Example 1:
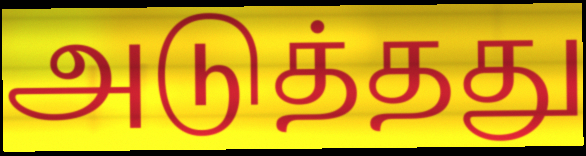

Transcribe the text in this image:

அடுத்தது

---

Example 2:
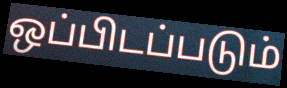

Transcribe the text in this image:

ஒப்பிடப்படும்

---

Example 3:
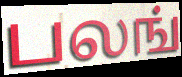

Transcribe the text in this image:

பலங்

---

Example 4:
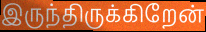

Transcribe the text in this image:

இருந்திருக்கிறேன்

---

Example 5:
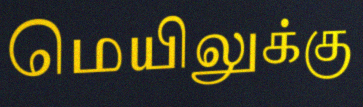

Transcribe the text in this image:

மெயிலுக்கு